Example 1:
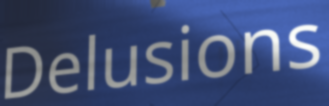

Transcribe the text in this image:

Delusions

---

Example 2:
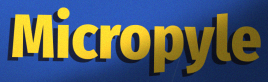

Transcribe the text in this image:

Micropyle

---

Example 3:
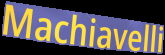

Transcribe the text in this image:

Machiavelli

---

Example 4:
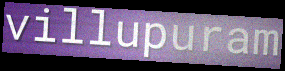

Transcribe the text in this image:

villupuram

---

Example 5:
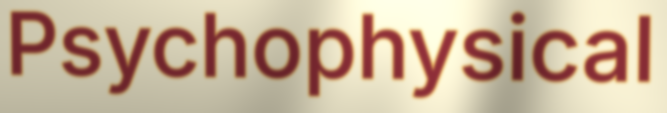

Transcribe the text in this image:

Psychophysical